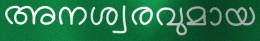
അനശ്വരവുമായ